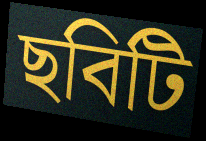
ছবিটি